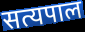
सत्यपाल